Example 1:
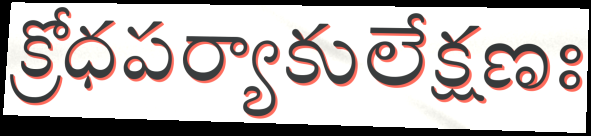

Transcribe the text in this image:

క్రోధపర్యాకులేక్షణః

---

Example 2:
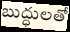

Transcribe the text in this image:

బుద్ధులతో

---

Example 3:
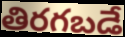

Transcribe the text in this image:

తిరగబడే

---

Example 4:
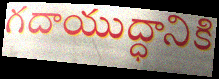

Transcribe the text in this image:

గదాయుద్ధానికి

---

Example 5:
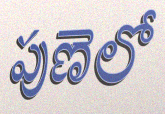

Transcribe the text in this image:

పుణెలో